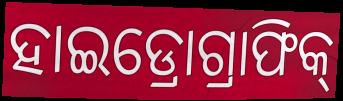
ହାଇଡ୍ରୋଗ୍ରାଫିକ୍